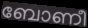
ബോണീ